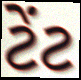
ટેંટ